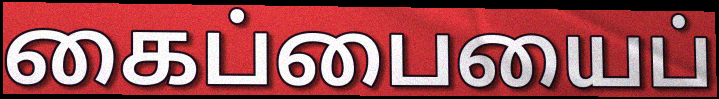
கைப்பையைப்